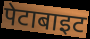
पेटाबाइट